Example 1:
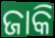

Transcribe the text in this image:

ଜାକି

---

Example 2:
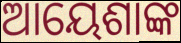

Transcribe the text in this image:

ଆୟେଶାଙ୍କ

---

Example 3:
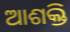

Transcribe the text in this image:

ଆଶକ୍ତି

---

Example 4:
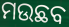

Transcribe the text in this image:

ମଉଛବ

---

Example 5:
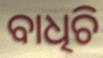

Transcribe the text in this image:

ବାଧିଚି